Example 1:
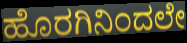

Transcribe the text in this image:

ಹೊರಗಿನಿಂದಲೇ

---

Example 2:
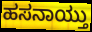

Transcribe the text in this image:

ಹಸನಾಯ್ತು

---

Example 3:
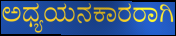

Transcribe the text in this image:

ಅಧ್ಯಯನಕಾರರಾಗಿ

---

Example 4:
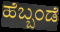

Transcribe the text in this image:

ಹೆಬ್ಬಂಡೆ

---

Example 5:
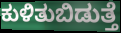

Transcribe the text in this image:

ಕುಳಿತುಬಿಡುತ್ತೆ